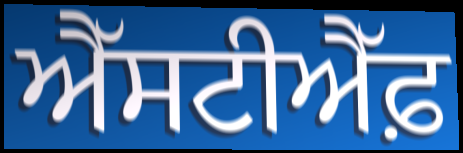
ਐੱਸਟੀਐੱਫ਼